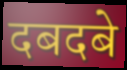
दबदबे